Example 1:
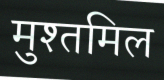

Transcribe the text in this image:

मुश्तमिल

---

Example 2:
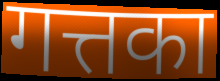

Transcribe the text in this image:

गत्तका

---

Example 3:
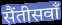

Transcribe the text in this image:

सैंतीसवाँ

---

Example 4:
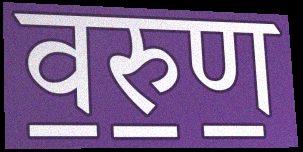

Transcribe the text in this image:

व॒रु॒ण॒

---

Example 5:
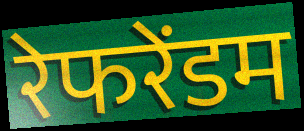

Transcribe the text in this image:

रेफरेंडम